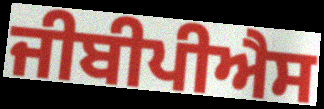
ਜੀਬੀਪੀਐਸ